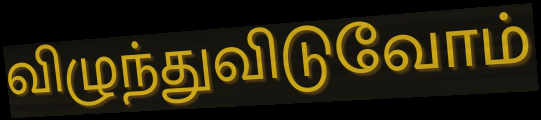
விழுந்துவிடுவோம்